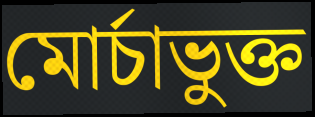
মোর্চাভুক্ত